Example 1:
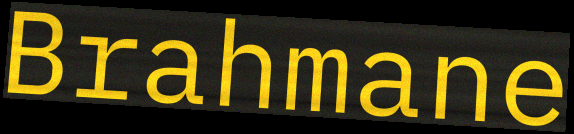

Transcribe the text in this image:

Brahmane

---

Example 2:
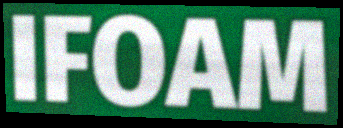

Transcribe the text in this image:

IFOAM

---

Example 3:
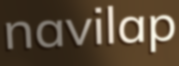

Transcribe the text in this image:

navilap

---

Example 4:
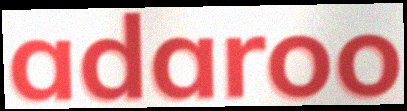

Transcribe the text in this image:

adaroo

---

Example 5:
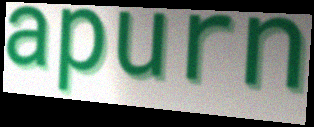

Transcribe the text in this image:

apurn